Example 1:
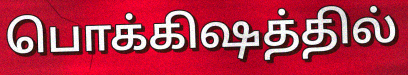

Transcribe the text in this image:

பொக்கிஷத்தில்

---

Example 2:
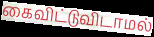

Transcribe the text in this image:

கைவிட்டுவிடாமல்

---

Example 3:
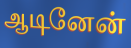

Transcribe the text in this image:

ஆடினேன்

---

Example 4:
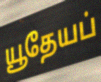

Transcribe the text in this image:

யூதேயப்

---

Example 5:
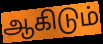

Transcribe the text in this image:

ஆகிடும்